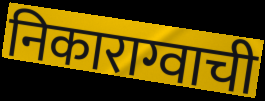
निकाराग्वाची